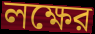
লক্ষের